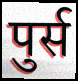
पुर्स